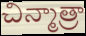
చిన్మాత్రా